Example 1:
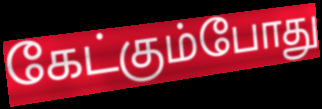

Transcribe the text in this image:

கேட்கும்போது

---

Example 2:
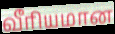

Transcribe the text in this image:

வீரியமான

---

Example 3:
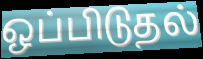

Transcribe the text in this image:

ஒப்பிடுதல்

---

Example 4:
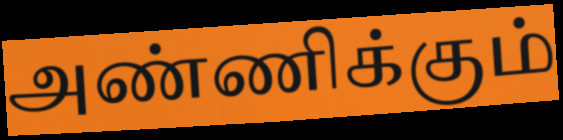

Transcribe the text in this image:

அண்ணிக்கும்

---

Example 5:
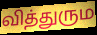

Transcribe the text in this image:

வித்துரும